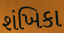
શંખિકા